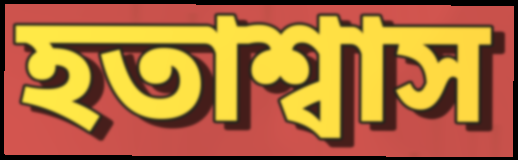
হতাশ্বাস